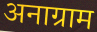
अनाग्राम